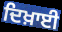
ਦਿਖ਼ਾਈ